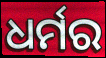
ଧର୍ମର